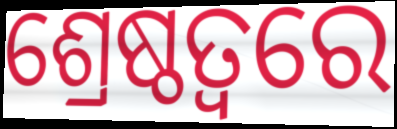
ଶ୍ରେଷ୍ଠତ୍ୱରେ